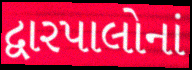
દ્વારપાલોનાં